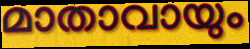
മാതാവായും